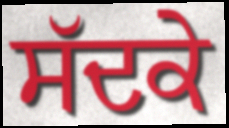
ਸੱਦਕੇ